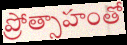
ప్రోత్సాహంతో